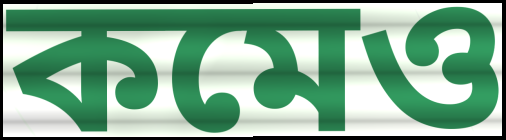
কমেও